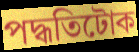
পদ্ধতিটোক